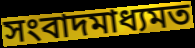
সংবাদমাধ্যমত